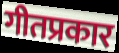
गीतप्रकार